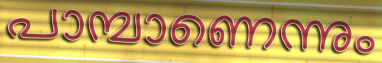
പാമ്പാണെന്നും